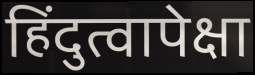
हिंदुत्वापेक्षा